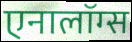
एनालॉग्स